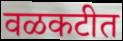
वळकटीत